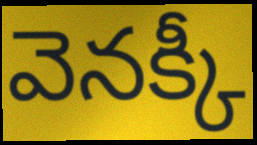
వెనక్కీ